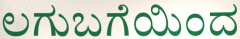
ಲಗುಬಗೆಯಿಂದ